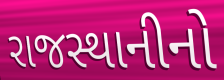
રાજસ્થાનીનો